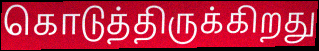
கொடுத்திருக்கிறது